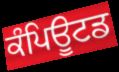
ਕੰਪਿਊਟਡ